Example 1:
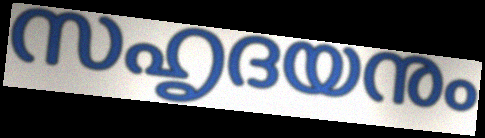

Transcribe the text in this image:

സഹൃദയനും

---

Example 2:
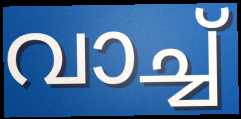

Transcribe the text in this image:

വാച്ച്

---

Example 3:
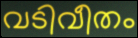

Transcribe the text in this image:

വടിവീതം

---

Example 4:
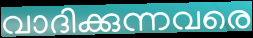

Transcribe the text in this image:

വാദിക്കുന്നവരെ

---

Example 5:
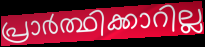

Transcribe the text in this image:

പ്രാർത്ഥിക്കാറില്ല